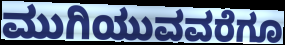
ಮುಗಿಯುವವರೆಗೂ